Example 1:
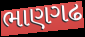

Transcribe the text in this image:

ભાણગઢ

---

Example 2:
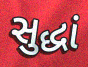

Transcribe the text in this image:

સુદ્ધાં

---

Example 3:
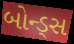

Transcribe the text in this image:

બોન્ડ્સ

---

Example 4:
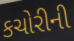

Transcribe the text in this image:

કચોરીની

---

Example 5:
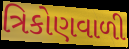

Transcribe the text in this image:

ત્રિકોણવાળી